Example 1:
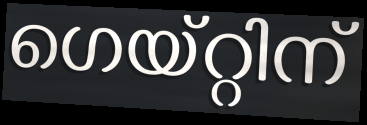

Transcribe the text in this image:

ഗെയ്റ്റിന്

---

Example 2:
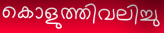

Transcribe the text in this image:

കൊളുത്തിവലിച്ചു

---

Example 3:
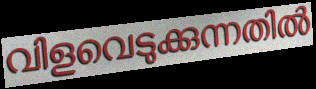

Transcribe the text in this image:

വിളവെടുക്കുന്നതിൽ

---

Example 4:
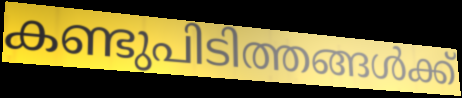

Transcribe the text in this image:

കണ്ടുപിടിത്തങ്ങൾക്ക്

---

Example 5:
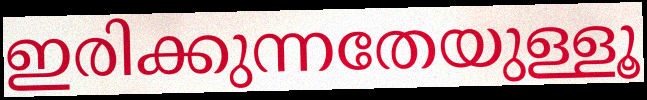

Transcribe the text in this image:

ഇരിക്കുന്നതേയുള്ളൂ